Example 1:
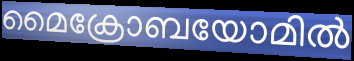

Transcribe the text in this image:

മൈക്രോബയോമിൽ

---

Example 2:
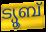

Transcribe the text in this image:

ട്യൂബ്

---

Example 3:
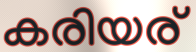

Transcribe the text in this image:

കരിയര്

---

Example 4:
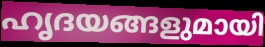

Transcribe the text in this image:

ഹൃദയങ്ങളുമായി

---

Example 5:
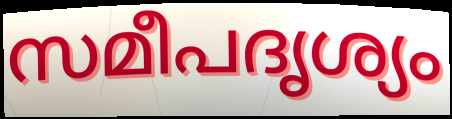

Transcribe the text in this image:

സമീപദൃശ്യം